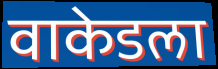
वाकेडला